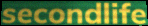
secondlife